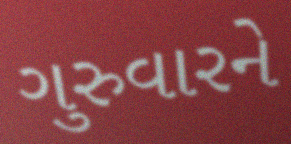
ગુરુવારને